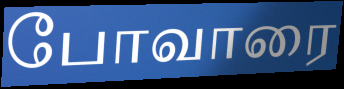
போவாரை